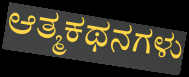
ಆತ್ಮಕಥನಗಳು